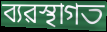
ব্যৱস্থাগত